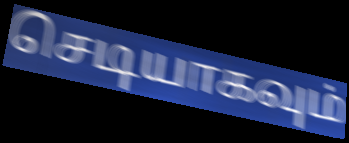
செடியாகவும்